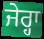
ਜੇਰ੍ਹਾ